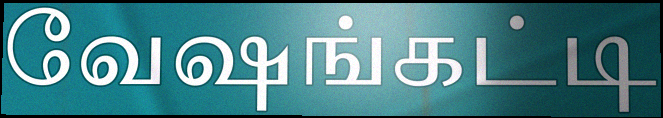
வேஷங்கட்டி